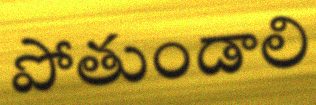
పోతుండాలి